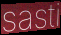
sasti